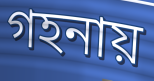
গহনায়